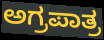
ಅಗ್ರಪಾತ್ರ